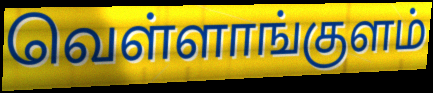
வெள்ளாங்குளம்